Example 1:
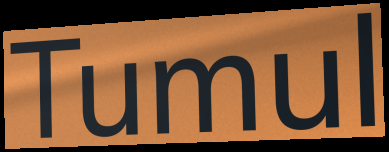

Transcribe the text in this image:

Tumul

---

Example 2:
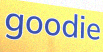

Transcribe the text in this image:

goodie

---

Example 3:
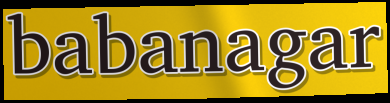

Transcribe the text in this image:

babanagar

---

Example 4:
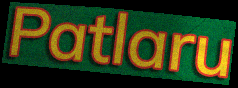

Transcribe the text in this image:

Patlaru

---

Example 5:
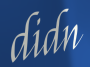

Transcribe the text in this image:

didn